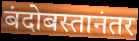
बंदोबस्तानंतर